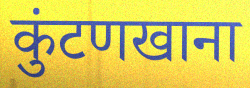
कुंटणखाना